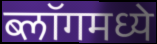
ब्लॉगमध्ये